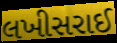
લખીસરાઈ